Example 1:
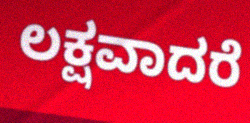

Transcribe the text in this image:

ಲಕ್ಷವಾದರೆ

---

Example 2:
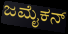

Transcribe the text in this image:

ಜಮೈಕನ್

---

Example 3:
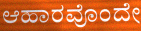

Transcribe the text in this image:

ಆಹಾರವೊಂದೇ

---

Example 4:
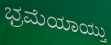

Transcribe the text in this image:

ಭ್ರಮೆಯಾಯ್ತು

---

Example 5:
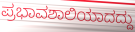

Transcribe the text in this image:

ಪ್ರಭಾವಶಾಲಿಯಾದದ್ದು